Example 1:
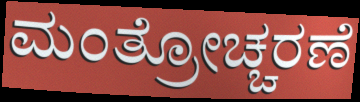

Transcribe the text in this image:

ಮಂತ್ರೋಚ್ಚರಣೆ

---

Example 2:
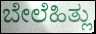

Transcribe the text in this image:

ಬೇಲೆಹಿತ್ಲು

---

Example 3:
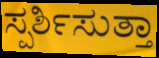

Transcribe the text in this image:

ಸ್ಪರ್ಶಿಸುತ್ತಾ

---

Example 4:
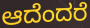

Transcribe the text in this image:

ಆದೆಂದರೆ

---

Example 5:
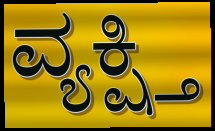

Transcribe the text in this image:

ವ್ಯಕ್ಷ್ತಿ